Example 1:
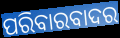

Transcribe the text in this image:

ପରିବାରବାଦର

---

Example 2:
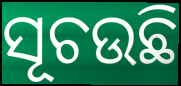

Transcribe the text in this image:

ସୂଚଉଛି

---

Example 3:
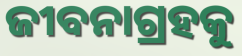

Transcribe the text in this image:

ଜୀବନାଗ୍ରହକୁ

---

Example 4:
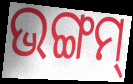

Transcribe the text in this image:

ଭଙ୍ଗମ୍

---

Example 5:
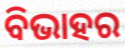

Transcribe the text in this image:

ବିଭାହର